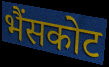
भैंसकोट